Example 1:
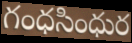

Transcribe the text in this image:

గంధసింధుర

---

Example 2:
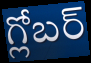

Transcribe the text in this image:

గ్లోబర్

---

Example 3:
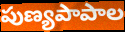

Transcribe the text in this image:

పుణ్యపాపాల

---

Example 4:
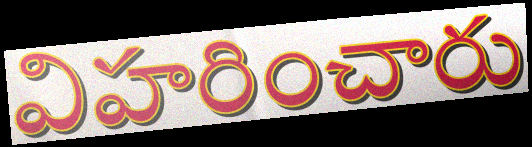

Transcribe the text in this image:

విహరించారు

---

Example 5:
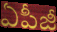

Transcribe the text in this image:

ఏపీజీ